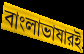
বাংলাভাষারই